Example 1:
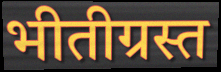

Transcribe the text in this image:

भीतीग्रस्त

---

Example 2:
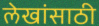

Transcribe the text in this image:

लेखांसाठी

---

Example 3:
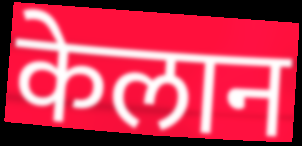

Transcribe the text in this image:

केलान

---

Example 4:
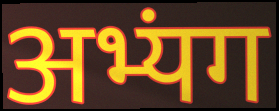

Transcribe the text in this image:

अभ्यंग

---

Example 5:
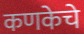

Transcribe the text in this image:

कणकेचे